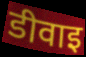
डीवाइ